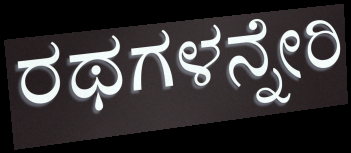
ರಥಗಳನ್ನೇರಿ